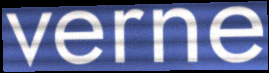
verne